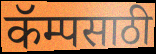
कॅम्पसाठी